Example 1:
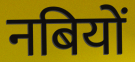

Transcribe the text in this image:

नबियों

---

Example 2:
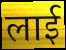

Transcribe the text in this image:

लाई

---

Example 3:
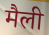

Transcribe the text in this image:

मैली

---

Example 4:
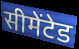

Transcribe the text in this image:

सीमेंटेड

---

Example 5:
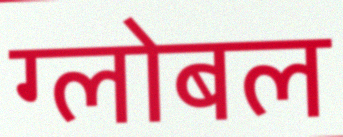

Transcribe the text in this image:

ग्लोबल